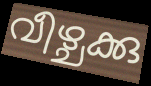
വീഴ്ചക്കു